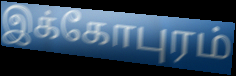
இக்கோபுரம்